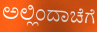
ಅಲ್ಲಿಂದಾಚೆಗೆ